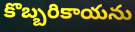
కొబ్బరికాయను